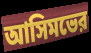
আসিমভের